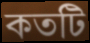
কতটি